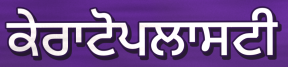
ਕੇਰਾਟੋਪਲਾਸਟੀ